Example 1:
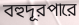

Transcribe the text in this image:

বহুদূরপারে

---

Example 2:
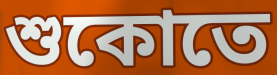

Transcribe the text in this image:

শুকোতে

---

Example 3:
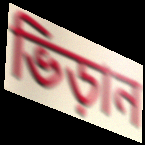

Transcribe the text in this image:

ভিড়ান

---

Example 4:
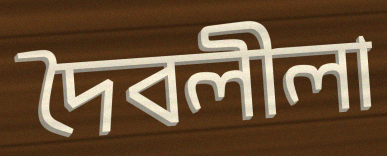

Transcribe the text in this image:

দৈবলীলা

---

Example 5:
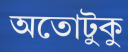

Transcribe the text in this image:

অতোটুকু